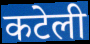
कटेली